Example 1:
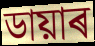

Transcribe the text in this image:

ডায়াৰ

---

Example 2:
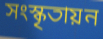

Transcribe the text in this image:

সংস্কৃতায়ন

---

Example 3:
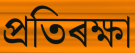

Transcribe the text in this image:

প্ৰতিৰক্ষা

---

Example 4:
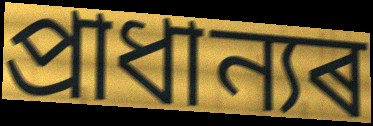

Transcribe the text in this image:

প্ৰাধান্যৰ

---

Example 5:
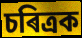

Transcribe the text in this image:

চৰিত্ৰক